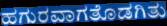
ಹಗುರವಾಗತೊಡಗಿತು